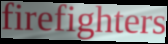
firefighters